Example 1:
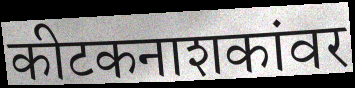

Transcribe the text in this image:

कीटकनाशकांवर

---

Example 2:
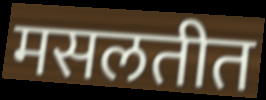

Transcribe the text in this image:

मसलतीत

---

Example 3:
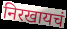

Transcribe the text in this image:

निरखायचं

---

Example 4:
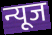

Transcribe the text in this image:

न्यूज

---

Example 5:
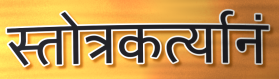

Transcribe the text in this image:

स्तोत्रकर्त्यानं